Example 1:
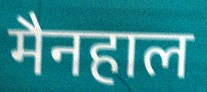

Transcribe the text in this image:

मैनहाल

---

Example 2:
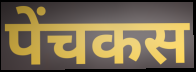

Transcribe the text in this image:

पेंचकस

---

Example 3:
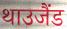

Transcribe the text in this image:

थाउजैंड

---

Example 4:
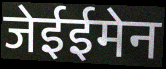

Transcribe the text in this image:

जेईईमेन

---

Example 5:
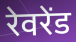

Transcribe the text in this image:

रेवरेंड